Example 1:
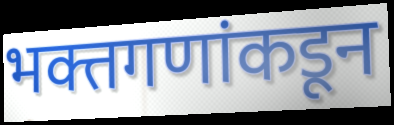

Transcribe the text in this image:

भक्तगणांकडून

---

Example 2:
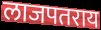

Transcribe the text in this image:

लाजपतराय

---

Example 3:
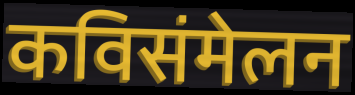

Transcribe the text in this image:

कविसंमेलन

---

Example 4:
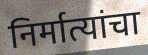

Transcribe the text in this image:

निर्मात्यांचा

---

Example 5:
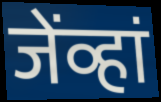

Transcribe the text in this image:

जेंव्हां